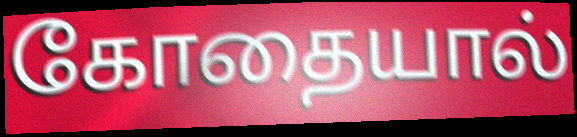
கோதையால்